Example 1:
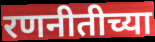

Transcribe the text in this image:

रणनीतीच्या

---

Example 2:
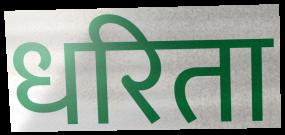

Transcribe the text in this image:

धरिता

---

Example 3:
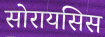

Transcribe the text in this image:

सोरायसिस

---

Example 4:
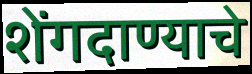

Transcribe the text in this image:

शेंगदाण्याचे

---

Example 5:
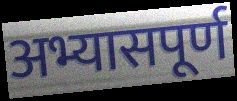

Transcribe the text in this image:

अभ्यासपूर्ण